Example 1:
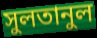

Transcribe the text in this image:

সুলতানুল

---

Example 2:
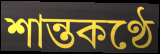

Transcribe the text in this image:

শান্তকণ্ঠে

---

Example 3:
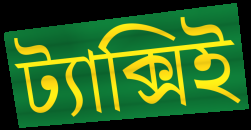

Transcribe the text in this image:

ট্যাক্সিই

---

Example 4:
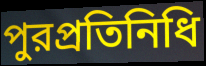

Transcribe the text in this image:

পুরপ্রতিনিধি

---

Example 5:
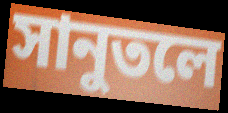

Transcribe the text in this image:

সানুতলে